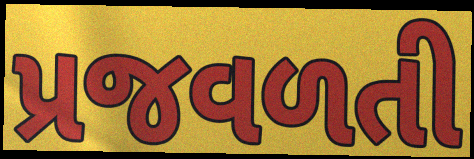
પ્રજવળતી